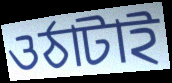
ওঠাটাই